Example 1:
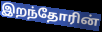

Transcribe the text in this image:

இறந்தோரின்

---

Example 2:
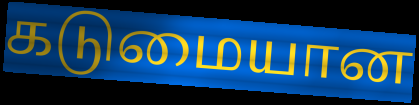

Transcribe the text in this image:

கடுமையான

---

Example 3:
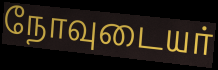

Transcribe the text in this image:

நோவுடையர்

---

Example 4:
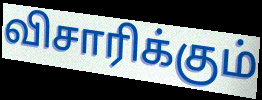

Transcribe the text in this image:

விசாரிக்கும்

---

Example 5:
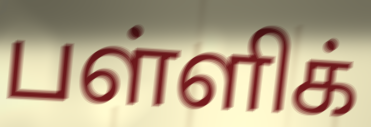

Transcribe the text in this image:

பள்ளிக்